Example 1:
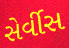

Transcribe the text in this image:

સેર્વીસ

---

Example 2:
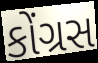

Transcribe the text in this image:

કોંગ્રસ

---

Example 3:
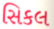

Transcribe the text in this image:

સિકલ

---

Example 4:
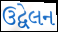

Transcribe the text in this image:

ઉદ્વેલન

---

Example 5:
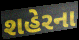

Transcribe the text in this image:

શહેરના